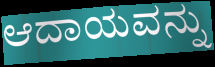
ಆದಾಯವನ್ನು